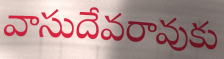
వాసుదేవరావుకు